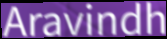
Aravindh